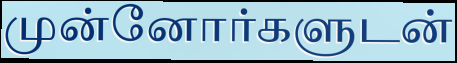
முன்னோர்களுடன்